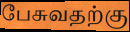
பேசுவதற்கு